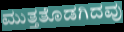
ಮುತ್ತತೊಡಗಿದವು